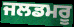
ਜਲਡਮਰੂ